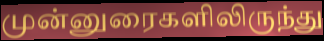
முன்னுரைகளிலிருந்து